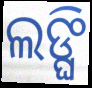
ଲଙ୍ଘି